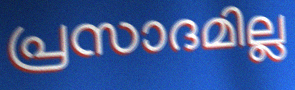
പ്രസാദമില്ല